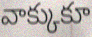
వాక్కుకూ